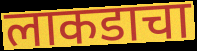
लाकडाचा